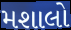
મશાલો